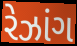
રેઝાંગ